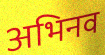
अभिनव